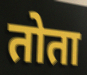
तोता